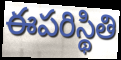
ఈపరిస్థితి